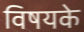
विषयके